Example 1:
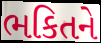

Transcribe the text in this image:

ભકિતને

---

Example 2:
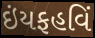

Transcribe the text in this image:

ઇંયફહવિં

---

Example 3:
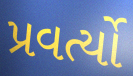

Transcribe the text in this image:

પ્રવર્ત્યો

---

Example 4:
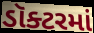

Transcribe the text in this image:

ડૉક્ટરમાં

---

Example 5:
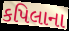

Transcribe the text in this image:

કપિલાના